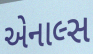
એનાલ્સ